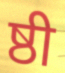
ष्ठी